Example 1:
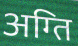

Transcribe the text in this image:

अग्ति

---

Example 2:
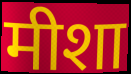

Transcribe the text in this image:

मीशा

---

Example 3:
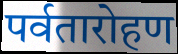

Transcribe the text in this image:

पर्वतारोहण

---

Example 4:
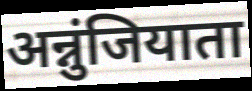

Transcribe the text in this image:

अन्नुंजियाता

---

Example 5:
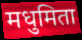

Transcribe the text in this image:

मधुमिता